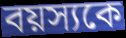
বয়স্যকে